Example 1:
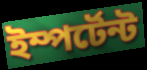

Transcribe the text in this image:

ইম্পর্টেন্ট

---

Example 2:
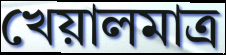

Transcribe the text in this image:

খেয়ালমাত্র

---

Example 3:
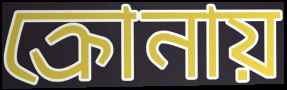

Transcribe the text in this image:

ক্রোনায়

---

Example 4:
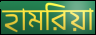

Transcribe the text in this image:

হামরিয়া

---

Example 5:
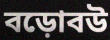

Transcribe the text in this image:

বড়োবউ